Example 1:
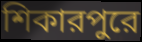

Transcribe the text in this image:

শিকারপুরে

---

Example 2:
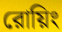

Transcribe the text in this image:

রোয়িং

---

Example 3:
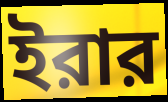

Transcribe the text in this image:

ইরার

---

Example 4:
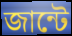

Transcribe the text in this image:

জান্টে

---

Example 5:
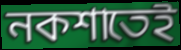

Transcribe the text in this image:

নকশাতেই